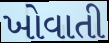
ખોવાતી